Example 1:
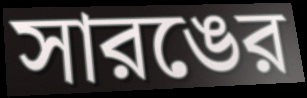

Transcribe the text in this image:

সারঙের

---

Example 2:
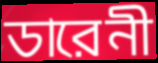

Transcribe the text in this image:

ডারেনী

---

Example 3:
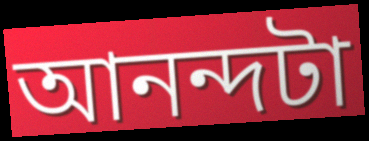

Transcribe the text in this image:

আনন্দটা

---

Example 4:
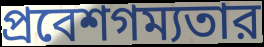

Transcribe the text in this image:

প্রবেশগম্যতার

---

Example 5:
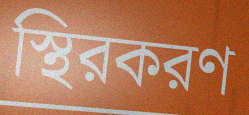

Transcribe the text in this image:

স্থিরকরণ